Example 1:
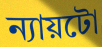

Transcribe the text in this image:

ন্যায়টো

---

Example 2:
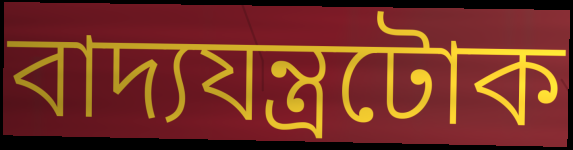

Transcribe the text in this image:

বাদ্যযন্ত্ৰটোক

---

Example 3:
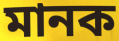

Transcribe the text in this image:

মানক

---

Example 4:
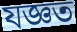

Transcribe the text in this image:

যজ্ঞত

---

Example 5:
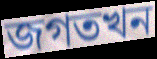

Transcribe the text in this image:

জগতখন